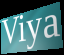
Viya